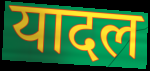
यादल